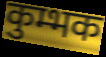
कुम्भक